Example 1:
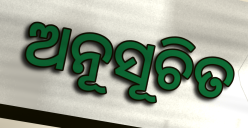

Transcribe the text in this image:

ଅନୂସୂଚିତ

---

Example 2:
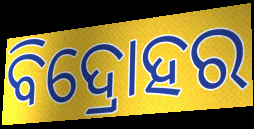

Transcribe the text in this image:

ବିଦ୍ରୋହର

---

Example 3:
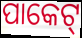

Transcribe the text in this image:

ପାକେଟ୍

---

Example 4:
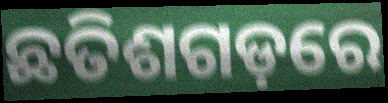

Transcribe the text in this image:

ଛତିଶଗଡ଼ରେ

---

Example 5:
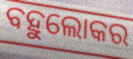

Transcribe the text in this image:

ବହୁଲୋକର